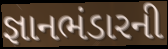
જ્ઞાનભંડારની